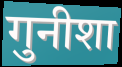
गुनीशा